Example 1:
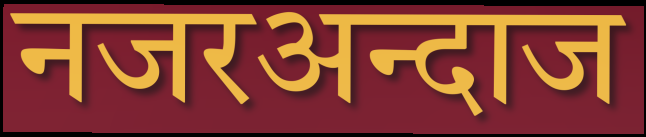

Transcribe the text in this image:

नजरअन्दाज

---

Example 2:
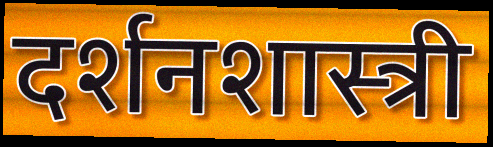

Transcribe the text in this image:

दर्शनशास्त्री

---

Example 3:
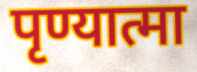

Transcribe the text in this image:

पृण्यात्मा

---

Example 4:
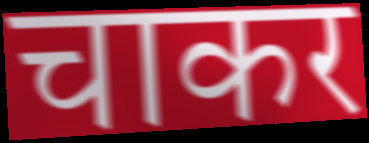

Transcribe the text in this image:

चाकर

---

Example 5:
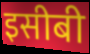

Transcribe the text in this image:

इसीबी